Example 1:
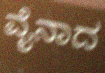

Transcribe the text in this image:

ವೈನಾದ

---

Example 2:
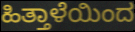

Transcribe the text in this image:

ಹಿತ್ತಾಳೆಯಿಂದ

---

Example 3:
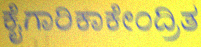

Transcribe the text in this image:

ಕೈಗಾರಿಕಾಕೇಂದ್ರಿತ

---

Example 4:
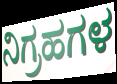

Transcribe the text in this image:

ನಿಗ್ರಹಗಳ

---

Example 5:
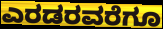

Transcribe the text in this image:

ಎರಡರವರೆಗೂ